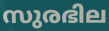
സുരഭില